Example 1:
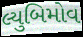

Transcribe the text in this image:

લ્યુબિમોવ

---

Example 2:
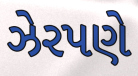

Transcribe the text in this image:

ઝેરપણે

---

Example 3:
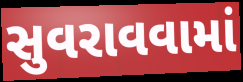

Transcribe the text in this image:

સુવરાવવામાં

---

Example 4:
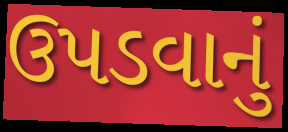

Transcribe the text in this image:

ઉપડવાનું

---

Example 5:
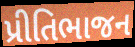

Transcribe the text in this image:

પ્રીતિભાજન